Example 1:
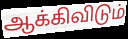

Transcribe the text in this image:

ஆக்கிவிடும்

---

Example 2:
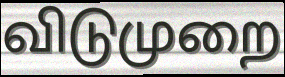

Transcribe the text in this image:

விடுமுறை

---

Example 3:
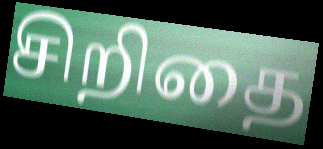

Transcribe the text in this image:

சிறிதை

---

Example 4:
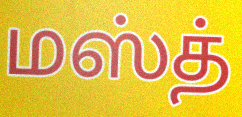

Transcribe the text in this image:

மஸ்த்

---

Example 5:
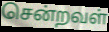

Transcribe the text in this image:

சென்றவள்